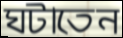
ঘটাতেন